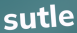
sutle